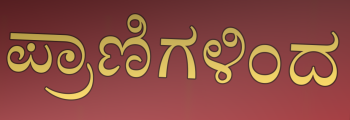
ಪ್ರಾಣಿಗಳಿಂದ